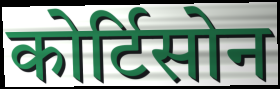
कोर्टिसोन